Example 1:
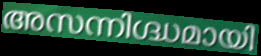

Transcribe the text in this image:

അസന്നിഗ്ദ്ധമായി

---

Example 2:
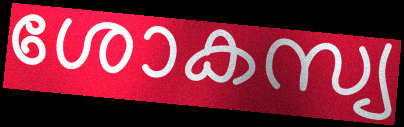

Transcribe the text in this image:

ശോകസ്യ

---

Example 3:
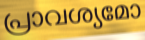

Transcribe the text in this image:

പ്രാവശ്യമോ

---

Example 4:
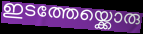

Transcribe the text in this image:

ഇടത്തേയ്ക്കൊരു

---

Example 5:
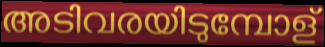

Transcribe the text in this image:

അടിവരയിടുമ്പോള്